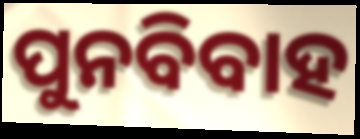
ପୁନବିବାହ